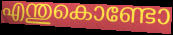
എന്തുകൊണ്ടോ